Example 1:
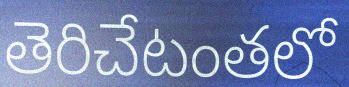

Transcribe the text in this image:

తెరిచేటంతలో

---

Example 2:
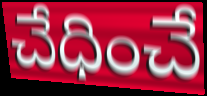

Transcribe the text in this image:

చేధించే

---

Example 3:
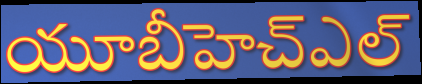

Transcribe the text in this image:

యూబీహెచ్ఎల్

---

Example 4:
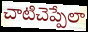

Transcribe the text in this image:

చాటిచెప్పేలా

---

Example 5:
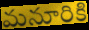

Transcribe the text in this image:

మనూరికి